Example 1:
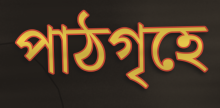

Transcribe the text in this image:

পাঠগৃহে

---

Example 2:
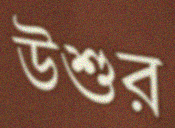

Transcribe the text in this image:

উশুর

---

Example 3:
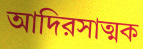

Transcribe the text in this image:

আদিরসাত্মক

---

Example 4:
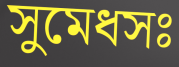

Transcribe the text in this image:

সুমেধসঃ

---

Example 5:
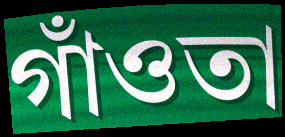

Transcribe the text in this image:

গাঁওতা